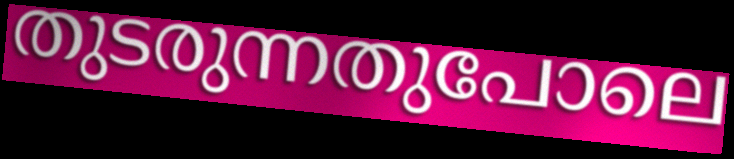
തുടരുന്നതുപോലെ